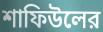
শাফিউলের